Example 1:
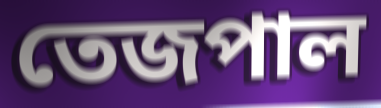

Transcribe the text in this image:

তেজপাল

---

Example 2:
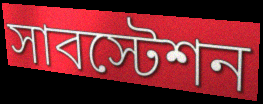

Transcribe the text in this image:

সাবস্টেশন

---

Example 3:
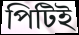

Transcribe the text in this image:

পিটিই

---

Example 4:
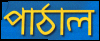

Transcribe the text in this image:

পাঠাল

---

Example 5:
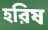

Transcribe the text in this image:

হরিষ